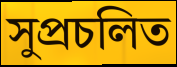
সুপ্রচলিত